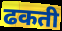
ढकती